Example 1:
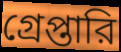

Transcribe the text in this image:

গ্রেপ্তারি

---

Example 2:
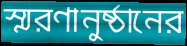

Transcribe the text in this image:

স্মরণানুষ্ঠানের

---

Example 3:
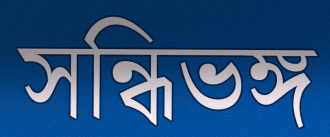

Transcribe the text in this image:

সন্ধিভঙ্গ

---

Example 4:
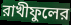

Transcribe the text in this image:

রাখীফুলের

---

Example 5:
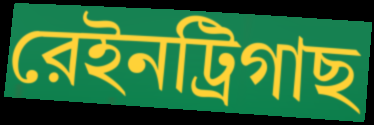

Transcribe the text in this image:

রেইনট্রিগাছ